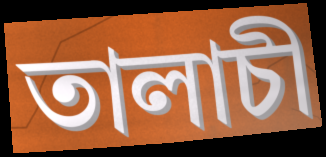
তালাচী